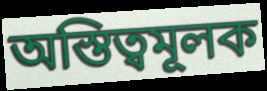
অস্তিত্বমূলক